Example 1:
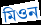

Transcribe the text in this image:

মিওন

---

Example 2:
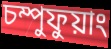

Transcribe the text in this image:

চম্পুফুয়াং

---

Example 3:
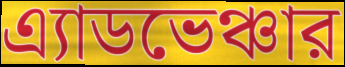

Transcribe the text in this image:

এ্যাডভেঞ্চার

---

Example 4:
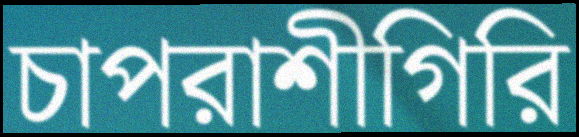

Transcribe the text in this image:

চাপরাশীগিরি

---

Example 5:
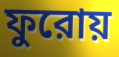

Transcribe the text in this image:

ফুরোয়